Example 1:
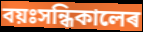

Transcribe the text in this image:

বয়ঃসন্ধিকালেৰ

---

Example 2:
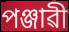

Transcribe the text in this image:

পঞ্জাৱী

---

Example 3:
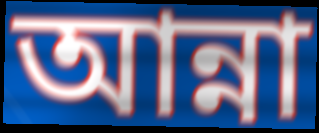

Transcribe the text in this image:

আন্না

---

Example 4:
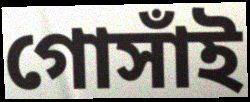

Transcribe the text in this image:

গোসাঁই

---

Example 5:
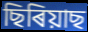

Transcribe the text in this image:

ছিৰিয়াছ